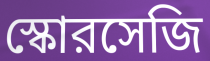
স্কোরসেজি